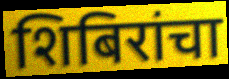
शिबिरांचा